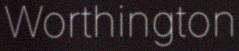
Worthington